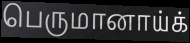
பெருமானாய்க்